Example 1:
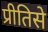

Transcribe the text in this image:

प्रीतिसे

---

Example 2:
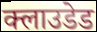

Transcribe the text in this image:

क्लाउडेड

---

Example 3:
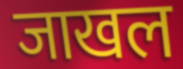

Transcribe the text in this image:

जाखल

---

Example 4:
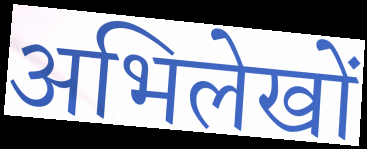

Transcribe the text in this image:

अभिलेखों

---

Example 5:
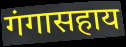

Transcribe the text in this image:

गंगासहाय